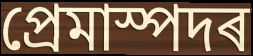
প্ৰেমাস্পদৰ